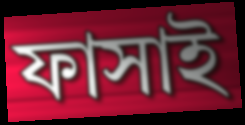
ফাসাই